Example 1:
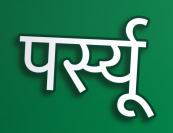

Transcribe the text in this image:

पर्स्यू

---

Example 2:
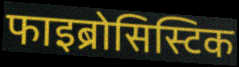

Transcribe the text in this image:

फाइब्रोसिस्टिक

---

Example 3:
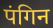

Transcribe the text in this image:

पंगिन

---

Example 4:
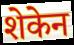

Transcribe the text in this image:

शेकेन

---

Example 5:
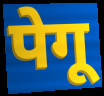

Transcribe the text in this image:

पेगू